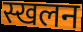
स्‍खलन